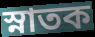
স্নাতক